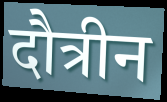
दौत्रीन